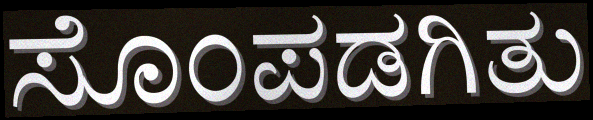
ಸೊಂಪಡಗಿತು